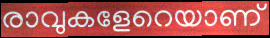
രാവുകളേറെയാണ്